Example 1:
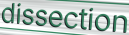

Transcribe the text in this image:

dissection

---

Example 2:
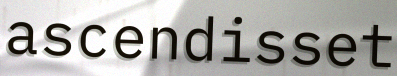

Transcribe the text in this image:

ascendisset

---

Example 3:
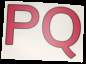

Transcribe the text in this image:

PQ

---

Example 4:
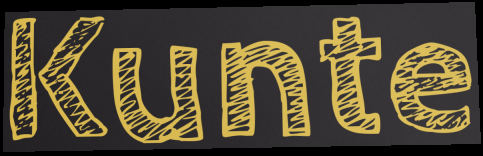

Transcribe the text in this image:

Kunte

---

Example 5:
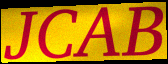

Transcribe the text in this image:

JCAB